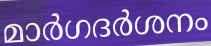
മാർഗദർശനം